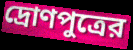
দ্রোণপুত্রের